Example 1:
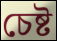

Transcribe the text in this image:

চেষ্ট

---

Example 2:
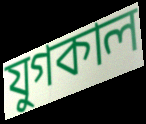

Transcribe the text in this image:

যুগকাল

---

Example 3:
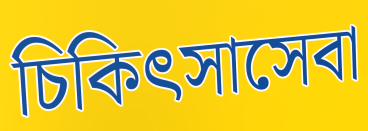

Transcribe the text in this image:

চিকিৎসাসেবা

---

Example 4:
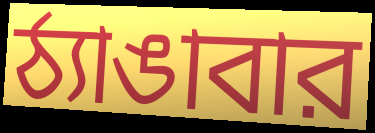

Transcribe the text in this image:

ঠ্যাঙাবার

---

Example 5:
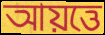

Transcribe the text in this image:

আয়ত্তে